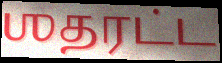
ஶதரட்ட